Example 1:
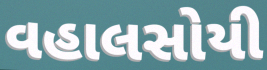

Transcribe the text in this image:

વહાલસોયી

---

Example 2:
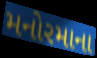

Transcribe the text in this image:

મનોરમાના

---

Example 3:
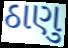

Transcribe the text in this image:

ઠાણુ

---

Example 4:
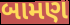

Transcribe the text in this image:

બામણ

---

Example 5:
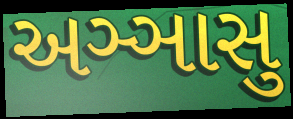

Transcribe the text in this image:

અઞ્ઞાસુ